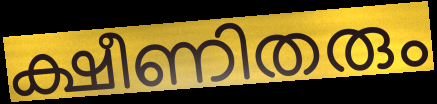
ക്ഷീണിതരും